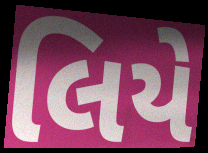
લિયે